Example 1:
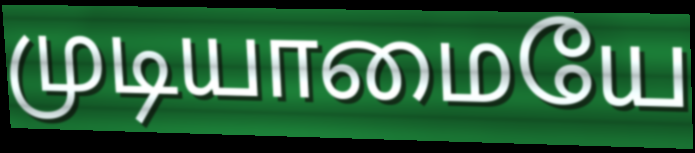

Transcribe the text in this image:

முடியாமையே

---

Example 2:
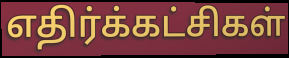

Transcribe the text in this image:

எதிர்க்கட்சிகள்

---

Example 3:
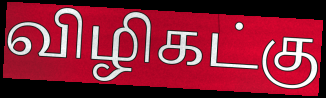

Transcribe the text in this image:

விழிகட்கு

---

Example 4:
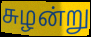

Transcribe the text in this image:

சுழன்று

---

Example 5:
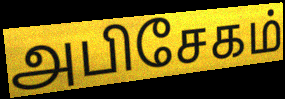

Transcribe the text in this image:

அபிசேகம்